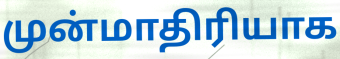
முன்மாதிரியாக